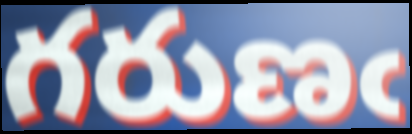
గరుణఁ